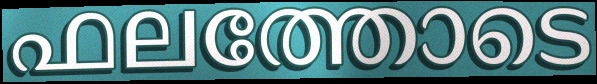
ഫലത്തോടെ